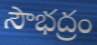
సౌభద్రం